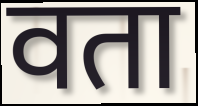
वता